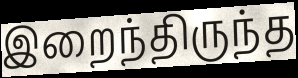
இறைந்திருந்த